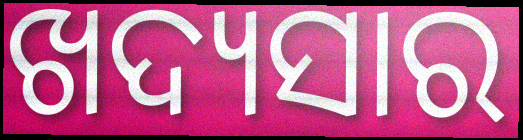
ଖଦ୍ୟସାର